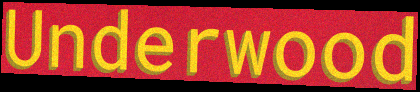
Underwood